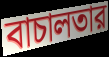
বাচালতার